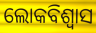
ଲୋକବିଶ୍ୱାସ